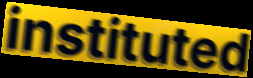
instituted